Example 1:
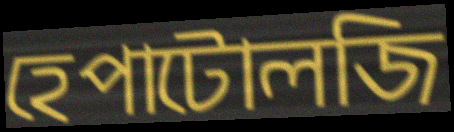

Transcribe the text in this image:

হেপাটোলজি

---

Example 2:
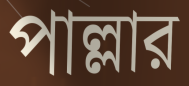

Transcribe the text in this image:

পাল্লার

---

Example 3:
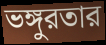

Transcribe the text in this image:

ভঙ্গুরতার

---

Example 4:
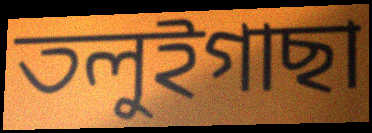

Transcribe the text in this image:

তলুইগাছা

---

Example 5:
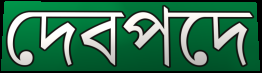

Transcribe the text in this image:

দেবপদে